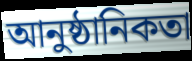
আনুষ্ঠানিকতা